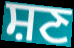
ਸ਼ਣ